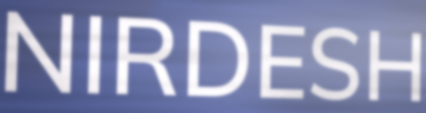
NIRDESH